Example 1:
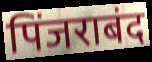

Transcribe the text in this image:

पिंजराबंद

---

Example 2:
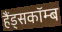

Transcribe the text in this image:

हैंड्सकॉम्ब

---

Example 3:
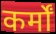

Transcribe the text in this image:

कर्मों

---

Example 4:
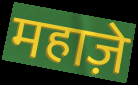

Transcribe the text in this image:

महाज़े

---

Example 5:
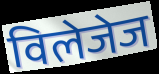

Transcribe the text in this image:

विलेजेज